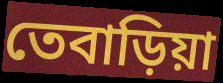
তেবাড়িয়া